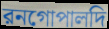
রনগোপালদি